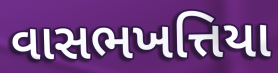
વાસભખત્તિયા